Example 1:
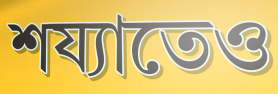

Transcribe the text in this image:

শয্যাতেও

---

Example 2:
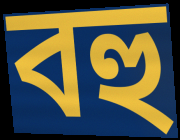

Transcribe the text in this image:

বহু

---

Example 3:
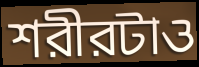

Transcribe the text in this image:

শরীরটাও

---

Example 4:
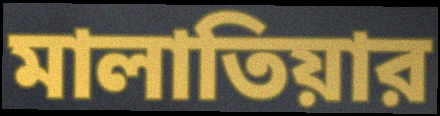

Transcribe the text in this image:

মালাতিয়ার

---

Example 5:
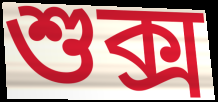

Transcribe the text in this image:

শুক্স